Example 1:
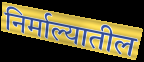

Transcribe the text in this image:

निर्माल्यातील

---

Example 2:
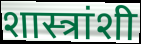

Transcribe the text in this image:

शास्त्रांशी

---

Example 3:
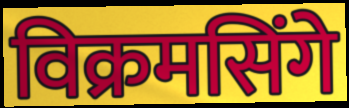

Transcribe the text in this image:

विक्रमसिंगे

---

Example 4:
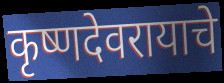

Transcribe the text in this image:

कृष्णदेवरायाचे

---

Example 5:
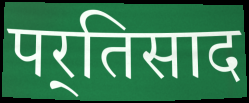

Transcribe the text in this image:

पर्तिसाद